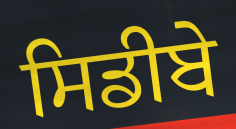
ਸਿਡੀਬੇ